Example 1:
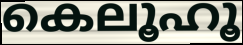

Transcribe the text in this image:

കെലൂഹൂ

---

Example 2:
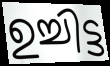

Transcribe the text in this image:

ഉച്ചിട്ട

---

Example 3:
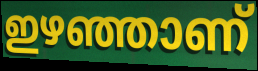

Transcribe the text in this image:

ഇഴഞ്ഞാണ്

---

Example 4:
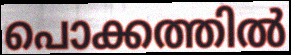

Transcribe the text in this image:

പൊക്കത്തിൽ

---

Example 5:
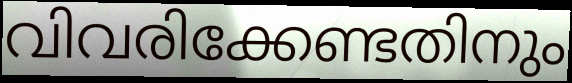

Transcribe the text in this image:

വിവരിക്കേണ്ടതിനും